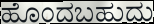
ಹೊಂದಬಹುದು